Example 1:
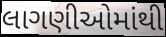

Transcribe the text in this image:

લાગણીઓમાંથી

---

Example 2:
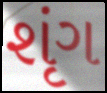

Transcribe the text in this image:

શૃંગ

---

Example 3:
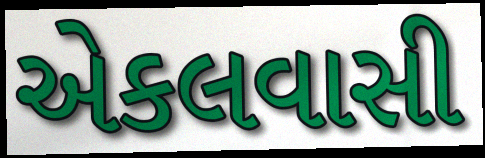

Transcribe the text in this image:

એકલવાસી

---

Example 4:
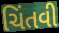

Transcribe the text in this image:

ચિંતવી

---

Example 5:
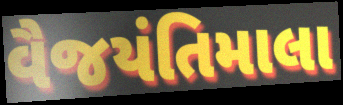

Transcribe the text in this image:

વૈજયંતિમાલા